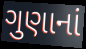
ગુણાનાં